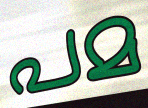
പമ